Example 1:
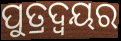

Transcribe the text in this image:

ପୁତ୍ରଦ୍ୱୟର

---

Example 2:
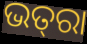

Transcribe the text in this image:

ଭତ୍‌ରା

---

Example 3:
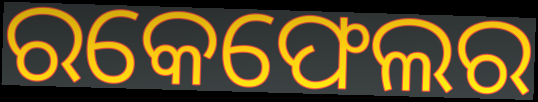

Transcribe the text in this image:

ରକେଫେଲର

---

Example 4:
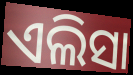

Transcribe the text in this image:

ଏଲିସା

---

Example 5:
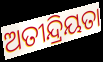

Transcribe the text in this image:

ଅତୀନ୍ଦ୍ରିୟତା